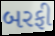
બરફી